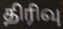
திரிவு